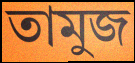
তামুজ